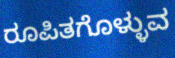
ರೂಪಿತಗೊಳ್ಳುವ